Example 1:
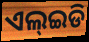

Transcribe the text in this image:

ଏଲ୍ଇଡି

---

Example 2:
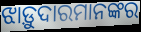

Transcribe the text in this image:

ଝାଡ଼ୁଦାରମାନଙ୍କର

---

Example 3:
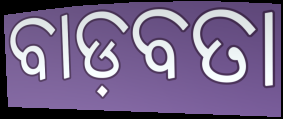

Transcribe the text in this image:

ବାଡ଼ବତା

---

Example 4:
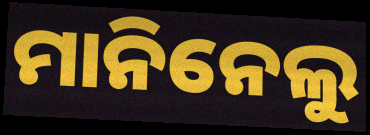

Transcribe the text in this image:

ମାନିନେଲୁ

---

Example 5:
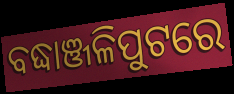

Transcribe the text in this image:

ବଦ୍ଧାଞ୍ଜଳିପୁଟରେ